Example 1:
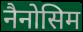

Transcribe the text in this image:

नैनोसिम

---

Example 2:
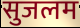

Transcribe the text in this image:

सुजलम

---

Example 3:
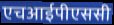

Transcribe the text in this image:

एचआईपीएससी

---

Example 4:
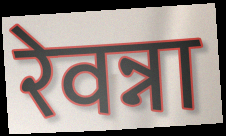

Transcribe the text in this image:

रेवन्ना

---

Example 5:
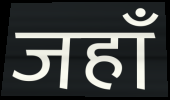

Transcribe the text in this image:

जहाँ